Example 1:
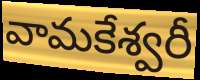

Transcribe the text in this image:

వామకేశ్వరీ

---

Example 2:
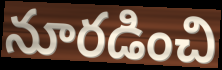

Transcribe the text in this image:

నూరడించి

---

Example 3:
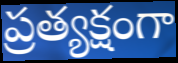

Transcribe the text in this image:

ప్రత్యక్షంగా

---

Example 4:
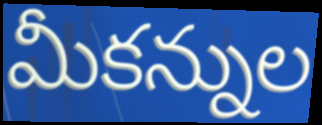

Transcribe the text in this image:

మీకన్నుల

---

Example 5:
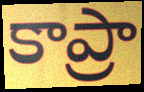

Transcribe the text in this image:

కాప్రా